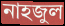
নাহজুল